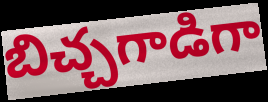
బిచ్చగాడిగా